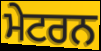
ਮੇਟਰਨ